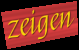
zeigen